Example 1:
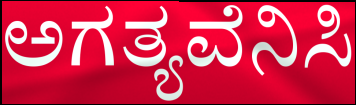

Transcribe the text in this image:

ಅಗತ್ಯವೆನಿಸಿ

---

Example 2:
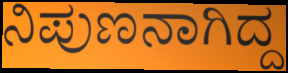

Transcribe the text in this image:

ನಿಪುಣನಾಗಿದ್ದ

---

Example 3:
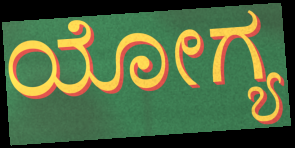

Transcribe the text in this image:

ಯೋಗ್ಯ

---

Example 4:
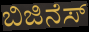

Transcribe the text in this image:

ಬಿಜಿನೆಸ್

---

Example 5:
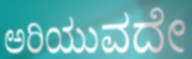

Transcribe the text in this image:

ಅರಿಯುವದೇ